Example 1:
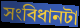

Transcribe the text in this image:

সংবিধানটা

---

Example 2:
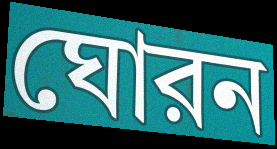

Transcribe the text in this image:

ঘোরন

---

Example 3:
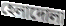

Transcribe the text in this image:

হেলাদোলা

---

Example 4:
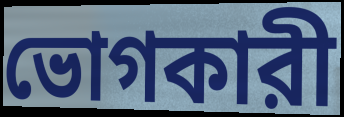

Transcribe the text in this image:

ভোগকারী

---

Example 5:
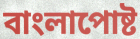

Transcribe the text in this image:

বাংলাপোষ্ট